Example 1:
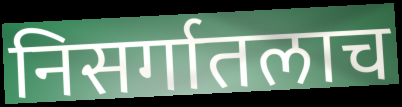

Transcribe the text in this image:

निसर्गातलाच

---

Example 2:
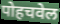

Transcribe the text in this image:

पोहचवेल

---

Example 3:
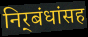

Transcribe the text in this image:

निर्बंधांसह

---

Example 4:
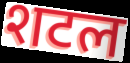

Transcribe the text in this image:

शटल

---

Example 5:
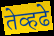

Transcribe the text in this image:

तेव्हढे